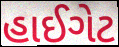
હાઈગેટ